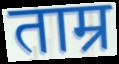
ताम्र